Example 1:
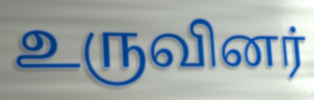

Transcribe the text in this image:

உருவினர்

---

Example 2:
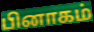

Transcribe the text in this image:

பினாகம்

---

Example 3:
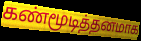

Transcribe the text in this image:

கண்மூடித்தனமாக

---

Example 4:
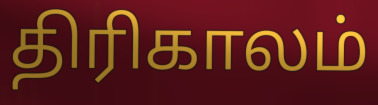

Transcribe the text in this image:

திரிகாலம்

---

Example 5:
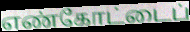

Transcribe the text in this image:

எண்கோட்டைப்